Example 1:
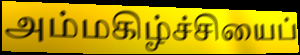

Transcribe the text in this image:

அம்மகிழ்ச்சியைப்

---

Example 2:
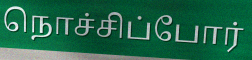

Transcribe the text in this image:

நொச்சிப்போர்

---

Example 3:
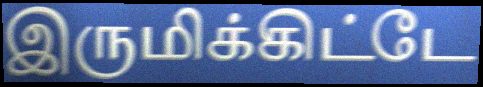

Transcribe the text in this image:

இருமிக்கிட்டே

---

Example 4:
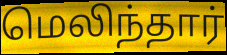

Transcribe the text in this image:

மெலிந்தார்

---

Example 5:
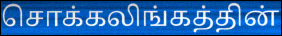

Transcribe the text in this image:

சொக்கலிங்கத்தின்